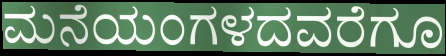
ಮನೆಯಂಗಳದವರೆಗೂ